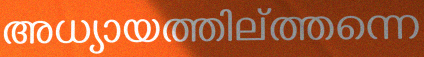
അധ്യായത്തില്ത്തന്നെ